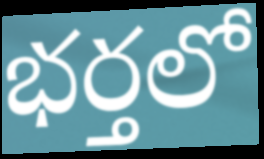
భర్తలో